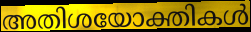
അതിശയോക്തികൾ